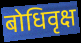
बोधिवृक्ष